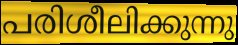
പരിശീലിക്കുന്നു